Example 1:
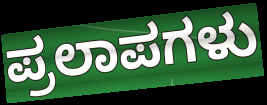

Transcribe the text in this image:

ಪ್ರಲಾಪಗಳು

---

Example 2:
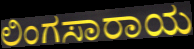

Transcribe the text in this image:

ಲಿಂಗಸಾರಾಯ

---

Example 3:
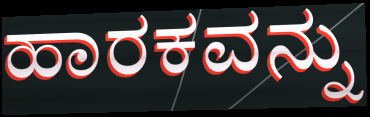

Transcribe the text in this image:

ಹಾರಕವನ್ನು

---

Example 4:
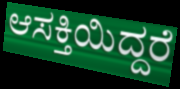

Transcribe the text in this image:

ಆಸಕ್ತಿಯಿದ್ದರೆ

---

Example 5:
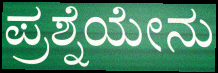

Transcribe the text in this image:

ಪ್ರಶ್ನೆಯೇನು